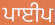
ਪਾਈਪ